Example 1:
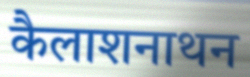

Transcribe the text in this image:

कैलाशनाथन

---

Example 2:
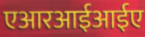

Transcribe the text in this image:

एआरआईआईए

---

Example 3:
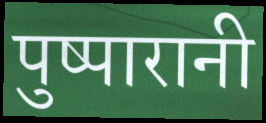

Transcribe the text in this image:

पुष्पारानी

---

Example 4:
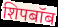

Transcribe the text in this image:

शिपबॉब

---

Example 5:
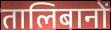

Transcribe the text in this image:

तालिबानों